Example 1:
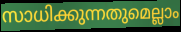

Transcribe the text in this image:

സാധിക്കുന്നതുമെല്ലാം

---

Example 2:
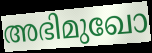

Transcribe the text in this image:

അഭിമുഖോ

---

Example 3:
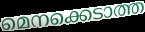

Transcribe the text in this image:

മെനക്കെടാത്ത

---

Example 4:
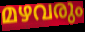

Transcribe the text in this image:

മഴവരും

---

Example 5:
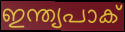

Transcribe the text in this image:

ഇന്ത്യപാക്